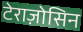
टेराज़ोसिन